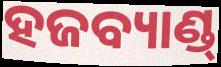
ହଜବ୍ୟାଣ୍ଡ୍